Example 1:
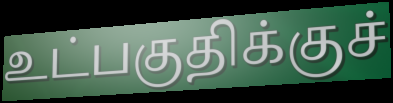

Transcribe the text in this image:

உட்பகுதிக்குச்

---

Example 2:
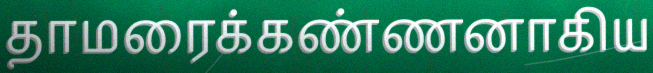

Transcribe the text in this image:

தாமரைக்கண்ணனாகிய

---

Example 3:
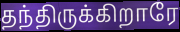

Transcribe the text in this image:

தந்திருக்கிறாரே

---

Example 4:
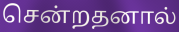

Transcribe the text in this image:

சென்றதனால்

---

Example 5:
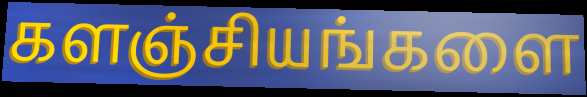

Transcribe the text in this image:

களஞ்சியங்களை